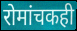
रोमांचकही